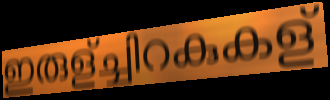
ഇരുള്ച്ചിറകുകള്